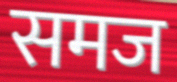
समज